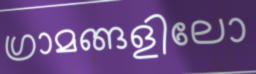
ഗ്രാമങ്ങളിലോ